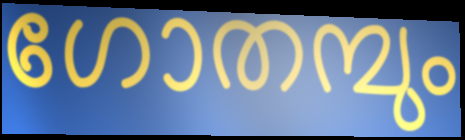
ഗോതമ്പും